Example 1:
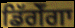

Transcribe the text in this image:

ਡਿੱਗੇਁਗਾ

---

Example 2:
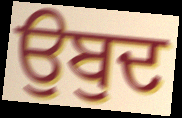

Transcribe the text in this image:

ਉਬੁਦ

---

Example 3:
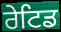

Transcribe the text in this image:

ਰੇਟਿਡ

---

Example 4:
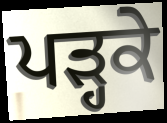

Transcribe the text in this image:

ਪੜ੍ਹਕੇ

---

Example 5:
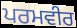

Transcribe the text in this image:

ਪਰਮਵੀਰ